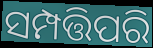
ସମ୍ପତ୍ତିପରି